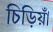
চিড়িয়াঁ